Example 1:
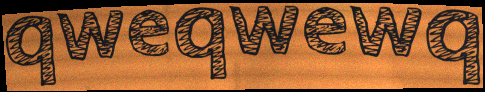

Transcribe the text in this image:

qweqwewq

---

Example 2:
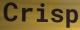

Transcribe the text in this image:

Crisp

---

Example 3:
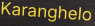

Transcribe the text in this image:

Karanghelo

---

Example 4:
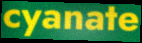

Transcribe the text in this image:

cyanate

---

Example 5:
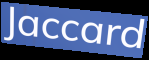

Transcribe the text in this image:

Jaccard